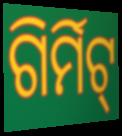
ଗିର୍ମିଟ୍